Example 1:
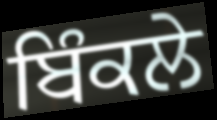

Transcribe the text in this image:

ਬਿੰਕਲੇ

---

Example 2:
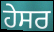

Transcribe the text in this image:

ਹੇਸਰ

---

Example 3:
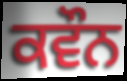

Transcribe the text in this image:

ਕਵੌਨ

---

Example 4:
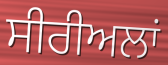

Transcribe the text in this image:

ਸੀਰੀਅਲਾਂ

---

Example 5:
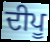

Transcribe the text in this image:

ਦੀਪੂ